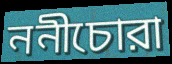
ননীচোরা